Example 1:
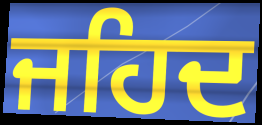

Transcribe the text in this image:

ਜਹਿਦ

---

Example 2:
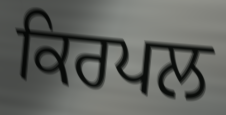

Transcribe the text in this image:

ਕਿਰਪਲ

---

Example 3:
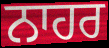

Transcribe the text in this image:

ਨਾਹਰ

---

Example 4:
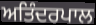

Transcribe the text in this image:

ਅਤਿੰਦਰਪਾਲ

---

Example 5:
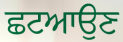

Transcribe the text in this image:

ਛਟਆਉਣ